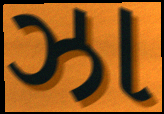
ઝા